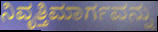
ನಿವೃತ್ತಿಮಾರ್ಗವನ್ನು